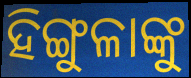
ହିଙ୍ଗୁଳାଙ୍କୁ